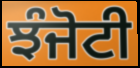
ਝੰਜੋਟੀ